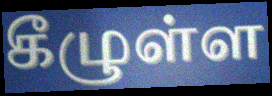
கீழுள்ள